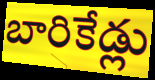
బారికేడ్లు